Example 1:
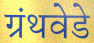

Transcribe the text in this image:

ग्रंथवेडे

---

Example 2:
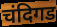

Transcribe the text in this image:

चंदिगड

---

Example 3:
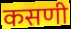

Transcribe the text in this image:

कसणी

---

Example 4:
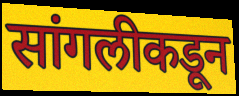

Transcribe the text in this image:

सांगलीकडून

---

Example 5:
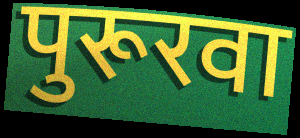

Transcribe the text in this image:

पुरूरवा